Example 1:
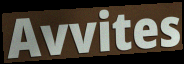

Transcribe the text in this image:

Avvites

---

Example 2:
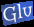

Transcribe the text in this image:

Glu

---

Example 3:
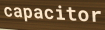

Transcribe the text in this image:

capacitor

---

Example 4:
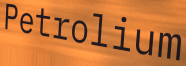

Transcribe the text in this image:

Petrolium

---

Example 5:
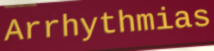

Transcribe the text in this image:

Arrhythmias